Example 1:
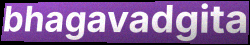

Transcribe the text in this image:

bhagavadgita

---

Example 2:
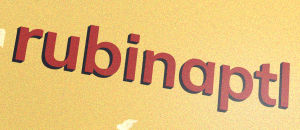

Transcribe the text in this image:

rubinaptl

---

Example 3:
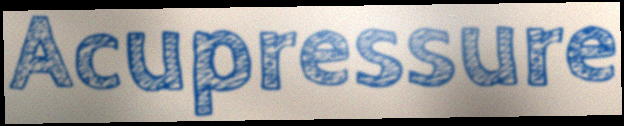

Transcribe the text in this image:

Acupressure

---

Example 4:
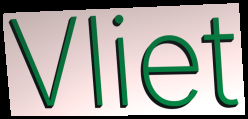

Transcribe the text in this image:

Vliet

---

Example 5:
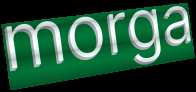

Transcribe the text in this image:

morga